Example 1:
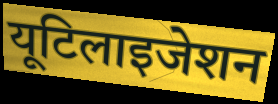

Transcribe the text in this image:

यूटिलाइजेशन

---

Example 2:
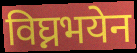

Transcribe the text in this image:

विघ्नभयेन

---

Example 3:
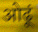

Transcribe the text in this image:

ओढ़ूं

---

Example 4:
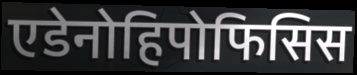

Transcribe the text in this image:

एडेनोहिपोफिसिस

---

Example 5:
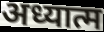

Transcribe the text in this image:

अध्यात्म